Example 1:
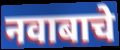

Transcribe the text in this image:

नवाबाचे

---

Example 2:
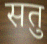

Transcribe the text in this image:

सतु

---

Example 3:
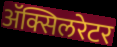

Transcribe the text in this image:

ॲक्सिलरेटर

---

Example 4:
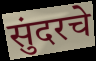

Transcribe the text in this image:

सुंदरचे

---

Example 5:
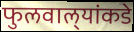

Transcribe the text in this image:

फुलवाल्यांकडे